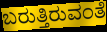
ಬರುತ್ತಿರುವಂತೆ